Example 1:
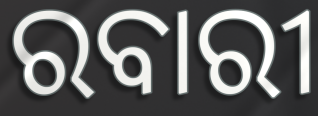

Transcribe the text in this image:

ରବାରୀ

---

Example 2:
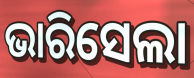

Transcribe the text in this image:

ଭାରିସେଲା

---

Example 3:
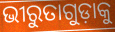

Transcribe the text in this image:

ଭୀରୁତାଗୁଡ଼ାକୁ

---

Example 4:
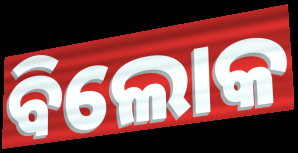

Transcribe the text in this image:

ବିଲୋକ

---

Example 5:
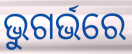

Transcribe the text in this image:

ଭୁଗର୍ଭରେ